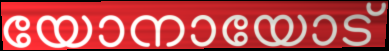
യോനായോട്